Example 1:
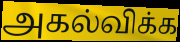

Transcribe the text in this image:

அகல்விக்க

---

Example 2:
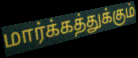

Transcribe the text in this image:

மார்க்கத்துக்கும்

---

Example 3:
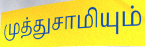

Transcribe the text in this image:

முத்துசாமியும்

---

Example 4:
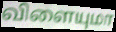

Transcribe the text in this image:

விளையுமா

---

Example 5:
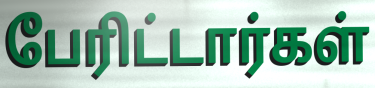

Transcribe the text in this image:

பேரிட்டார்கள்